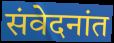
संवेदनांत